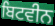
ਬਿਟਵੀਨ